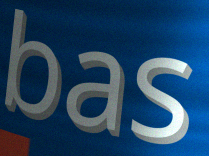
bas